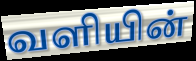
வளியின்